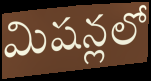
మిషన్లలో